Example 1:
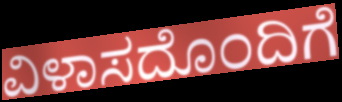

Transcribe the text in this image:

ವಿಳಾಸದೊಂದಿಗೆ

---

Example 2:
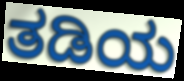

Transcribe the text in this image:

ತಡಿಯ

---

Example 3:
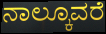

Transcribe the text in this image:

ನಾಲ್ಕೂವರೆ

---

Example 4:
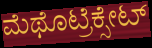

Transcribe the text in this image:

ಮೆಥೊಟ್ರೆಕ್ಸೇಟ್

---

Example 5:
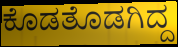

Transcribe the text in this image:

ಕೊಡತೊಡಗಿದ್ದ